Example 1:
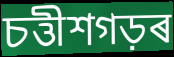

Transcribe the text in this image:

চত্তীশগড়ৰ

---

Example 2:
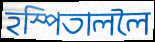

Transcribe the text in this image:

হস্পিতাললৈ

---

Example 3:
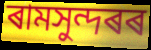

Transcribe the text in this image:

ৰামসুন্দৰৰ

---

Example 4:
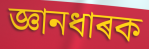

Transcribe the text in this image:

জ্ঞানধাৰক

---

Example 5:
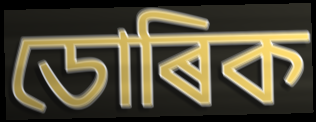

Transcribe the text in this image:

ডোৰিক